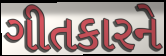
ગીતકારને